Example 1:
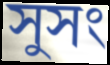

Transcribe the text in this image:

সুসং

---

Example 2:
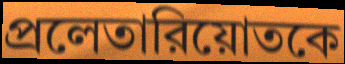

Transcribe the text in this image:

প্রলেতারিয়োতকে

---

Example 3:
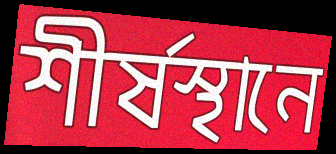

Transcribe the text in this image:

শীর্ষস্থানে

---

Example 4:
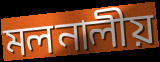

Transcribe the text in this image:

মলনালীয়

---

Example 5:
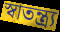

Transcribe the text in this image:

স্বাতন্ত্র্য